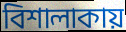
বিশালাকায়